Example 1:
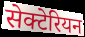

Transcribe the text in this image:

सेक्टेरियन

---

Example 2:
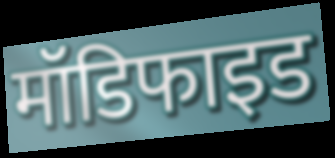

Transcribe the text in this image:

मॉडिफाइड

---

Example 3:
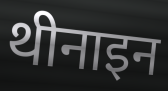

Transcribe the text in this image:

थीनाइन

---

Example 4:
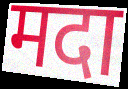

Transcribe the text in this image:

मदा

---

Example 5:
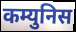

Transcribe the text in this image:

कम्युनिस